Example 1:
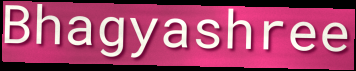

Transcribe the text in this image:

Bhagyashree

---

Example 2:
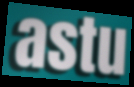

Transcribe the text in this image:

astu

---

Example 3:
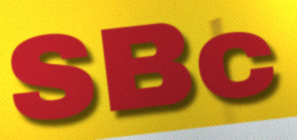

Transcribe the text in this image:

SBc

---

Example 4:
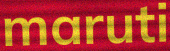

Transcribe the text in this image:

maruti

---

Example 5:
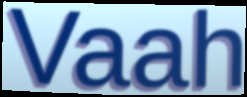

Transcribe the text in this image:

Vaah